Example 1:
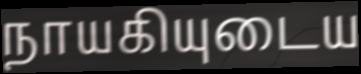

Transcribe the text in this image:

நாயகியுடைய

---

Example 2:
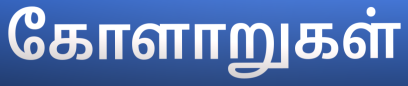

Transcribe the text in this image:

கோளாறுகள்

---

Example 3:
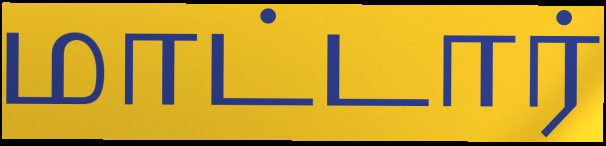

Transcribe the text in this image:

மாட்டார்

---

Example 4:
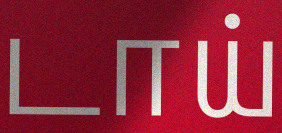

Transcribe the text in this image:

டாய்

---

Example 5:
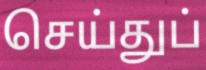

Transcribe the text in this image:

செய்துப்